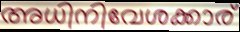
അധിനിവേശക്കാര്